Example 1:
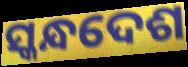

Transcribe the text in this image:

ସ୍କନ୍ଧଦେଶ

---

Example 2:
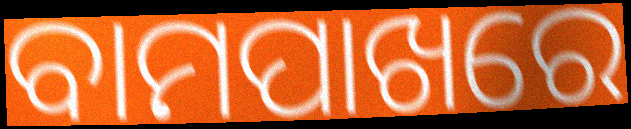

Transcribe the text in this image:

ବାମପାଖରେ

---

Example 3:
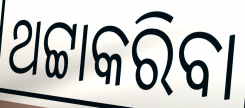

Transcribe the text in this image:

ଥଟ୍ଟାକରିବା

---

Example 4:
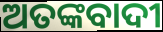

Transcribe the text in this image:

ଅତଙ୍କବାଦୀ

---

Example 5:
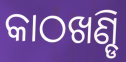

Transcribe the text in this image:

କାଠଖଣ୍ଡି